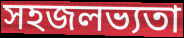
সহজলভ্যতা